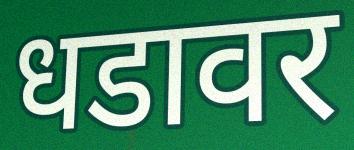
धडावर